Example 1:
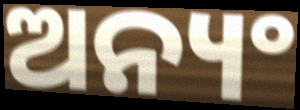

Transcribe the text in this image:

ଅନ୍ୟଂ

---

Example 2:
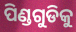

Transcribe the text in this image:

ପିଣ୍ଡଗୁଡିକୁ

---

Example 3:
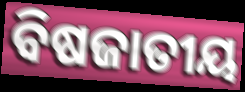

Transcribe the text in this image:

ବିଷଜାତୀୟ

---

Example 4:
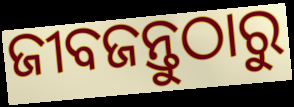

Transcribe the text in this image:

ଜୀବଜନ୍ତୁଠାରୁ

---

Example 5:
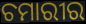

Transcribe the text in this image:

ଚମାରୀର